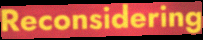
Reconsidering